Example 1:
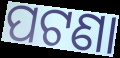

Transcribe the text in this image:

ପଟଣା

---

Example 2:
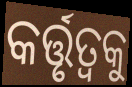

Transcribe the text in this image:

କର୍ତ୍ତୃତ୍ୱକୁ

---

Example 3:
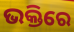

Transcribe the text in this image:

ଭକ୍ତିରେ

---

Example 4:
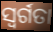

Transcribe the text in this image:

ସ୍ୱର୍ଗତା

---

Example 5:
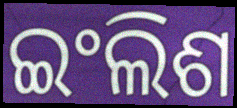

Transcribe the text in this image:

ଇଂଲିଶ